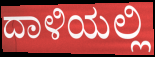
ದಾಳಿಯಲ್ಲಿ